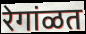
रेगांळत